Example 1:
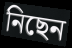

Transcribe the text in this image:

নিছেন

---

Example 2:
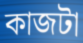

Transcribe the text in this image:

কাজটা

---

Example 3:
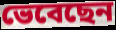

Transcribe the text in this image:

ভেবেছেন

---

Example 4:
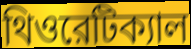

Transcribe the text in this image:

থিওরেটিক্যাল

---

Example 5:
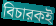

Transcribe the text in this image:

বিচারকই